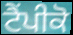
ਟੈਂਪੀਕੋ